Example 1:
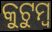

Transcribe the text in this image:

କୁଟୁମ୍ଵ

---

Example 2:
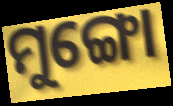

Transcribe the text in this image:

ମୁଙ୍ଗୋ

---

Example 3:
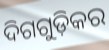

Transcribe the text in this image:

ଦିଗଗୁଡ଼ିକର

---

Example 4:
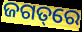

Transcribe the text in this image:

ଜଗତ୍‌ରେ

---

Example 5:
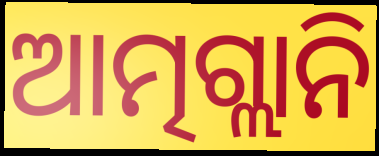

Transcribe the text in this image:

ଆତ୍ମଗ୍ଲାନି